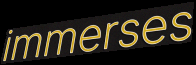
immerses